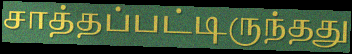
சாத்தப்பட்டிருந்தது